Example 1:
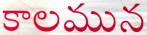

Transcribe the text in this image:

కాలమున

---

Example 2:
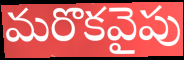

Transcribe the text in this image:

మరొకవైపు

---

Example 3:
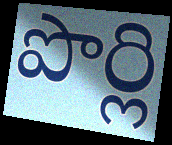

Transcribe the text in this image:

పొర్లి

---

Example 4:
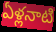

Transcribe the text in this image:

ఏళ్లనాటి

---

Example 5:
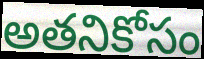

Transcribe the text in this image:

అతనికోసం